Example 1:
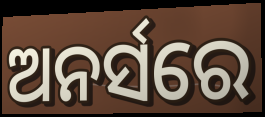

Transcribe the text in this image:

ଅନର୍ସରେ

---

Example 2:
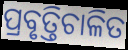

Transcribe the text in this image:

ପ୍ରବୃତ୍ତିଚାଳିତ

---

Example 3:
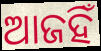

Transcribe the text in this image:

ଆଜହିଁ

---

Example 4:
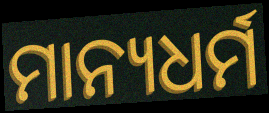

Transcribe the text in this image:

ମାନ୍ୟଧର୍ମ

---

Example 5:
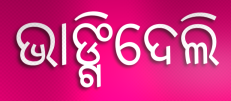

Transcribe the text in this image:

ଭାଙ୍ଗିଦେଲି